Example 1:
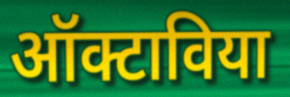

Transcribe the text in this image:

ऑक्टाविया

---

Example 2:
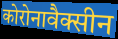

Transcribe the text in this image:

कोरोनावैक्सीन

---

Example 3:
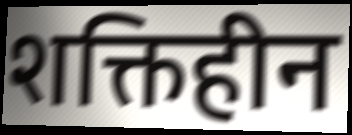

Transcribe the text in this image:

शक्तिहीन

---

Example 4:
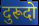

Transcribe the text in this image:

दुरूदो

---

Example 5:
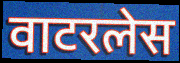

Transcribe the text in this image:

वाटरलेस